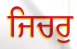
ਜਿਚਰੁ